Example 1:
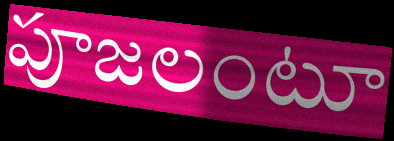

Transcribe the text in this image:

పూజలంటూ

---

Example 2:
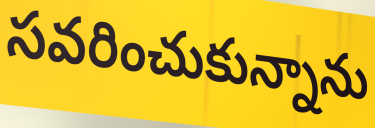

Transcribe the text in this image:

సవరించుకున్నాను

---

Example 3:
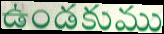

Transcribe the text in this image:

ఉండకుము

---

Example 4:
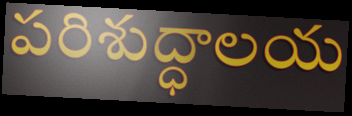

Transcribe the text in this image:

పరిశుద్ధాలయ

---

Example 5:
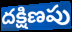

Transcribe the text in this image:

దక్షిణపు